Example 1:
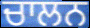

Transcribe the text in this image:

ਚਾਲਨ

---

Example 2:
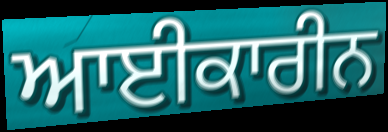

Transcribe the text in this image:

ਆਈਕਾਰੀਨ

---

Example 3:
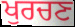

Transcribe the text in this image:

ਖੁਰਚਣ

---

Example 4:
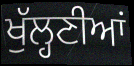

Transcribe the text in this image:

ਖੁੱਲ੍ਹਣੀਆਂ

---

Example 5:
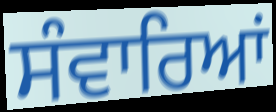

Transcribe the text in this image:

ਸੰਵਾਰਿਆਂ